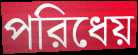
পরিধেয়